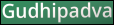
Gudhipadva